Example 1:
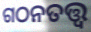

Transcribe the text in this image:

ଗଠନତତ୍ତ୍ୱ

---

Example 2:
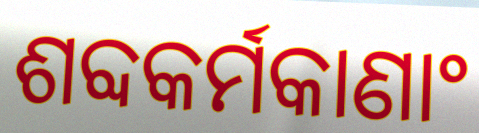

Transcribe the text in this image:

ଶବ୍ଦକର୍ମକାଣାଂ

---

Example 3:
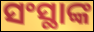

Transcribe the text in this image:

ସଂସ୍ଥାଙ୍କ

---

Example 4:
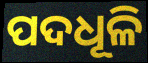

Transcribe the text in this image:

ପଦଧୂଳି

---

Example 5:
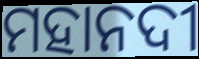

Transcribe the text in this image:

ମହାନଦୀ